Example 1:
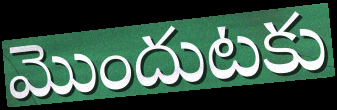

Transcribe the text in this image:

మొందుటకు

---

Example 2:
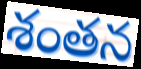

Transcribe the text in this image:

శంతన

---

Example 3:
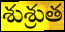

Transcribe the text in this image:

శుశ్రుత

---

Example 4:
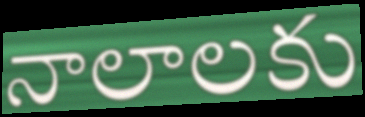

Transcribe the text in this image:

నాలాలకు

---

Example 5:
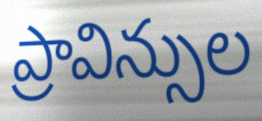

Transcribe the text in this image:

ప్రావిన్సుల